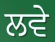
ਲਵੇ